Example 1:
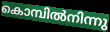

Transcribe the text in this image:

കൊമ്പിൽനിന്നു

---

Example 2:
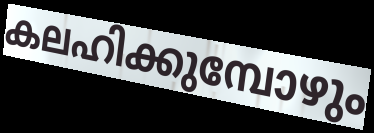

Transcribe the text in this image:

കലഹിക്കുമ്പോഴും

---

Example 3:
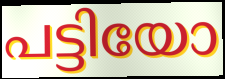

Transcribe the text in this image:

പട്ടിയോ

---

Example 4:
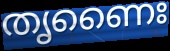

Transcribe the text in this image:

തൃണൈഃ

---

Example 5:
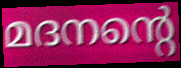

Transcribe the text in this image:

മദനന്റെ